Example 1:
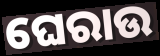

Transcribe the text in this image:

ଘେରାଉ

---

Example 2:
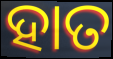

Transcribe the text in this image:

ହାତ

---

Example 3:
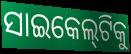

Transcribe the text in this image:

ସାଇକେଲ୍‌ଟିକୁ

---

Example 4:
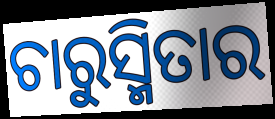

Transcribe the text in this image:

ଚାରୁସ୍ମିତାର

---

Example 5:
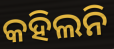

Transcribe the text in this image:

କହିଲନି